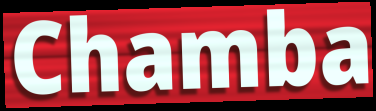
Chamba